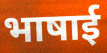
भाषाई